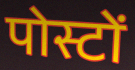
पोस्टों